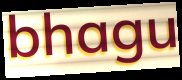
bhagu